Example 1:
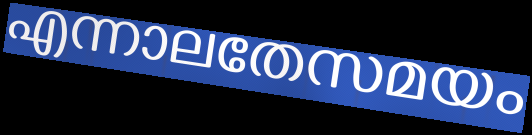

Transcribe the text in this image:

എന്നാലതേസമയം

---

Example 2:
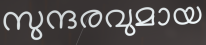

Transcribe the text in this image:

സുന്ദരവുമായ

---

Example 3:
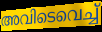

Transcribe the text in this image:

അവിടെവെച്ച്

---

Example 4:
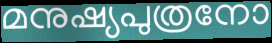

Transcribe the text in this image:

മനുഷ്യപുത്രനോ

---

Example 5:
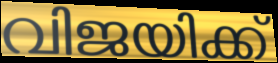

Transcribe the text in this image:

വിജയിക്ക്